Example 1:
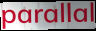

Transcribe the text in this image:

parallal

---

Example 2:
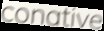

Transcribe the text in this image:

conative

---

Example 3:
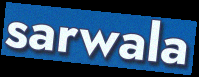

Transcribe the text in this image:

sarwala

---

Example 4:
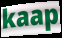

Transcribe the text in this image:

kaap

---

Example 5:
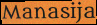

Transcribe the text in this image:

Manasija